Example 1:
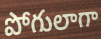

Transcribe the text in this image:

పోగులాగా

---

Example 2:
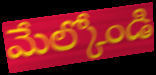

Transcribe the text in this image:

మేల్కోండి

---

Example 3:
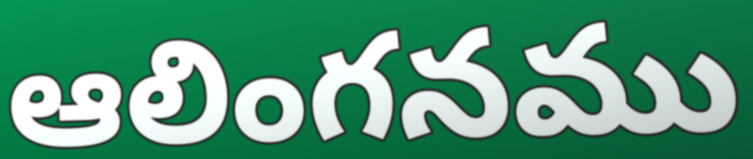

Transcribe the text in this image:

ఆలింగనము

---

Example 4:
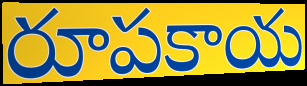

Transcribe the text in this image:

రూపకాయ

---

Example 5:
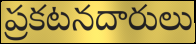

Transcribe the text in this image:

ప్రకటనదారులు